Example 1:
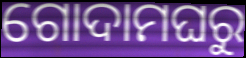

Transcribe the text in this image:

ଗୋଦାମଘରୁ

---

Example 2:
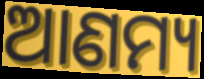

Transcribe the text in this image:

ଆଣମ୍ୟ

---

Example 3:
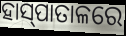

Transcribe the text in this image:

ହାସ୍‍ପାତାଳରେ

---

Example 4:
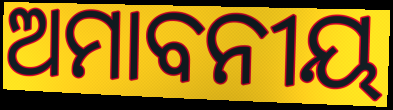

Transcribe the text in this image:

ଅମାବନୀୟ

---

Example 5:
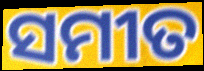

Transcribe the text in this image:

ସମୀତ